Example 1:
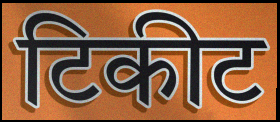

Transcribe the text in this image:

टिकीट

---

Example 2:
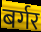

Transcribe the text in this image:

बर्गर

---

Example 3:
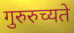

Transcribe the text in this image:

गुरुरुच्यते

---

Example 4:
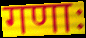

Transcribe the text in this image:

गणाः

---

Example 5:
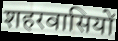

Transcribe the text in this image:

शहरवासियों